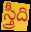
స్త్రీది